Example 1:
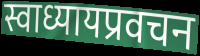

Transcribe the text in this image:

स्वाध्यायप्रवचन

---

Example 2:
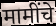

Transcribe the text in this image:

मामींचे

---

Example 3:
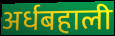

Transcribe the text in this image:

अर्धबहाली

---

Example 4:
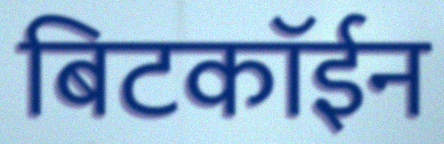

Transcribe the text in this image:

बिटकॉईन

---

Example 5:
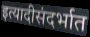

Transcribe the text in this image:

इत्यादीसंदर्भात